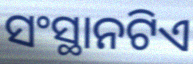
ସଂସ୍ଥାନଟିଏ